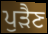
ਪੁੜੈਣ